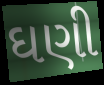
ઘણી